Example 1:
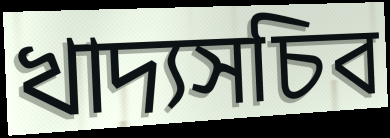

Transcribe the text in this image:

খাদ্যসচিব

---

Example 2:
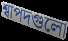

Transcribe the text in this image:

শ্বাপদগুলো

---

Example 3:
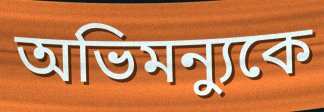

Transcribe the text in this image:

অভিমন্যুকে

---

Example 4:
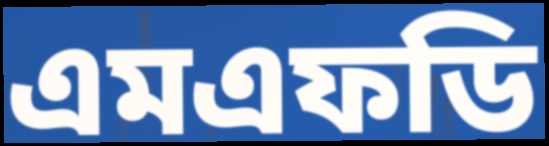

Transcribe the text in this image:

এমএফডি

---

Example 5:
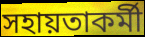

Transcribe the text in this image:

সহায়তাকর্মী